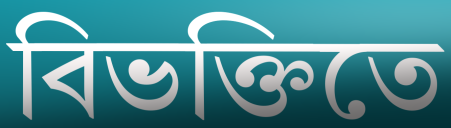
বিভক্তিতে